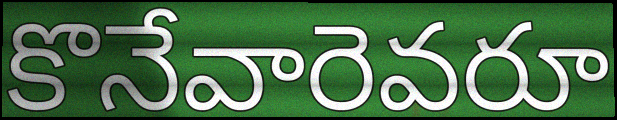
కొనేవారెవరూ